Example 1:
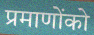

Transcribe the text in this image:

प्रमाणोंको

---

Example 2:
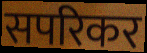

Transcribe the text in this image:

सपरिकर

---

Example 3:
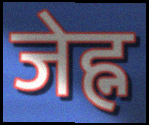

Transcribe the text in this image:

जेह्न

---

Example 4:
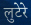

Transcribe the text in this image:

लुटेरे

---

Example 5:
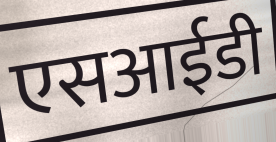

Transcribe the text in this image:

एसआईडी